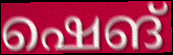
ഷെങ്